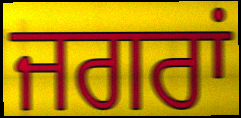
ਜਗਰਾਂ